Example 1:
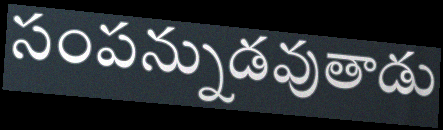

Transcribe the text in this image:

సంపన్నుడవుతాడు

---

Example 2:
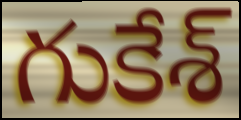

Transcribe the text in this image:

గుకేశ్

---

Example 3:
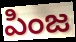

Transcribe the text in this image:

పింజ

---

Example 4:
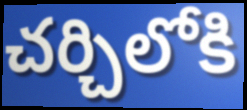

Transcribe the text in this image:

చర్చిలోకి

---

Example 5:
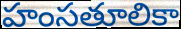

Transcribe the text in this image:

హంసతూలికా